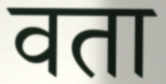
वता